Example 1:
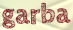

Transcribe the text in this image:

garba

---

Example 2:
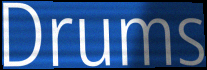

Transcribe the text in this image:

Drums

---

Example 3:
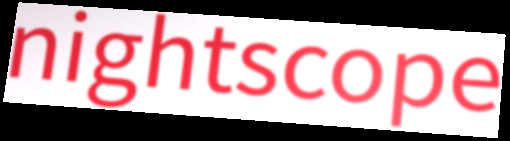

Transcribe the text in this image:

nightscope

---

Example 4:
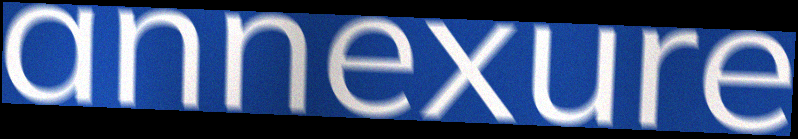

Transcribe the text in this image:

annexure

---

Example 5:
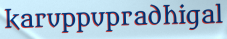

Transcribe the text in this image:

karuppupradhigal